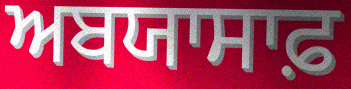
ਅਬਯਾਸਾਫ਼